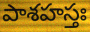
పాశహస్తః